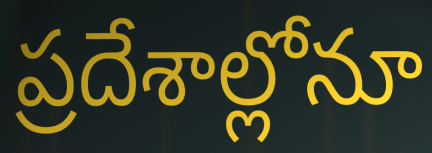
ప్రదేశాల్లోనూ